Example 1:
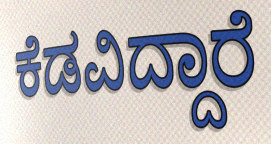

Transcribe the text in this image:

ಕೆಡವಿದ್ದಾರೆ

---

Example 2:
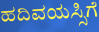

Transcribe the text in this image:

ಹದಿವಯಸ್ಸಿಗೆ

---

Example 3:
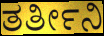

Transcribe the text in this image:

ತರ್ತೀನಿ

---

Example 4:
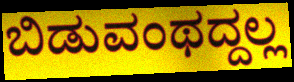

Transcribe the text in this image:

ಬಿಡುವಂಥದ್ದಲ್ಲ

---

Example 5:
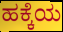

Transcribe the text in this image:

ಹಕ್ಕೆಯ